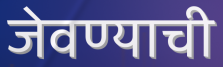
जेवण्याची